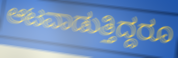
ಆಟವಾಡುತ್ತಿದ್ದರೂ